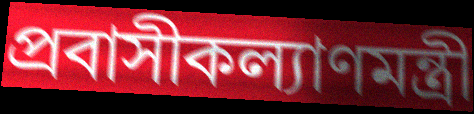
প্রবাসীকল্যাণমন্ত্রী